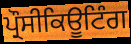
ਪ੍ਰੌਸੀਕਿਊਟਿੰਗ